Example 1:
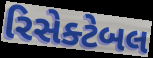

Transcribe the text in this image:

રિસેક્ટેબલ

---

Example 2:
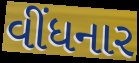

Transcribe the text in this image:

વીંધનાર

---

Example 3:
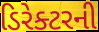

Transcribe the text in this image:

ડિરેક્ટરની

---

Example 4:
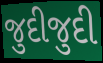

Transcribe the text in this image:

જુદીજુદી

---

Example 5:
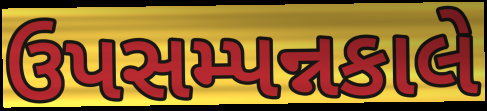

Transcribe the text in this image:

ઉપસમ્પન્નકાલે